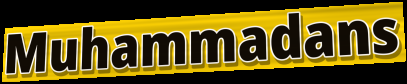
Muhammadans